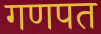
गणपत